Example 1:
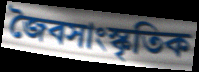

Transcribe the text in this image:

জৈবসাংস্কৃতিক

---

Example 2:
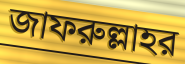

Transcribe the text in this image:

জাফরুল্লাহর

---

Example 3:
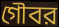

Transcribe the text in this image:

গৌবর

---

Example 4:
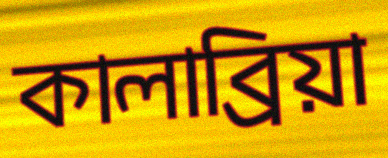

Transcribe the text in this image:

কালাব্রিয়া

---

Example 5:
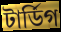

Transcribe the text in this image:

টার্ডিগ